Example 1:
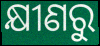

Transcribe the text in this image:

କ୍ଷୀଣରୁ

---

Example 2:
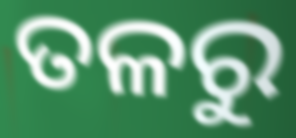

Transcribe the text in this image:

ତଳରୁ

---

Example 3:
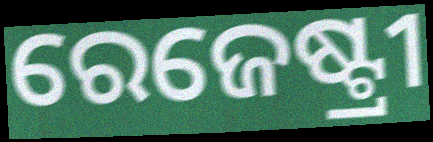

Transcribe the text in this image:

ରେଜେଷ୍ଟ୍ରୀ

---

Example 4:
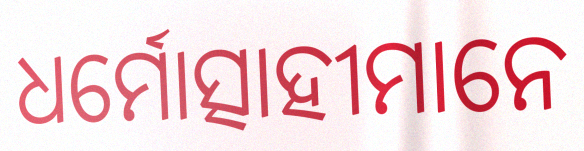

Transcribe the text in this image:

ଧର୍ମୋତ୍ସାହୀମାନେ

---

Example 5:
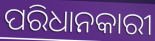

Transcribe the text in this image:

ପରିଧାନକାରୀ